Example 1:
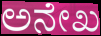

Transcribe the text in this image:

ಅನೇಖ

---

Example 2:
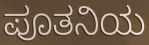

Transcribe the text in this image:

ಪೂತನಿಯ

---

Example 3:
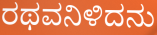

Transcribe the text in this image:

ರಥವನಿಳಿದನು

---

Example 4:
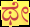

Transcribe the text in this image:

ಥೇ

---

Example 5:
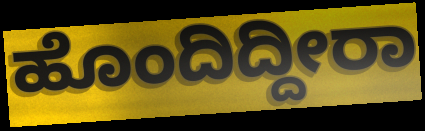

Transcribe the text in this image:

ಹೊಂದಿದ್ದೀರಾ